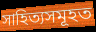
সাহিত্যসমূহত